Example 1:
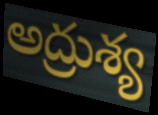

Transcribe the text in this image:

అద్రుశ్య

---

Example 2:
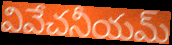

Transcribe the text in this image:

వివేచనీయమ్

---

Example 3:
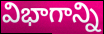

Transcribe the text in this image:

విభాగాన్ని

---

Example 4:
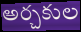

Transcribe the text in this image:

అర్చకుల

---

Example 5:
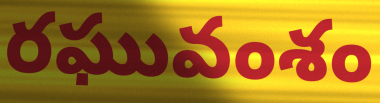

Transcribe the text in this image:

రఘువంశం